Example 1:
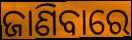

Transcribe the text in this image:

ଜାଣିବାରେ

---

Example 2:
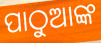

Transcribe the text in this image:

ପାଠୁଆଙ୍କ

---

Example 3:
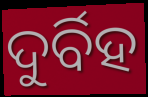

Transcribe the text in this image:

ଦୁର୍ବିହ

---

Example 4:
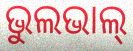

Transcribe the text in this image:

ଭୁଲଭାଲ୍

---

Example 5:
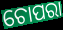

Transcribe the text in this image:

ଚୋପରା